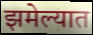
झमेल्यात